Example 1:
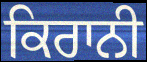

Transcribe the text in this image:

ਕਿਰਾਨੀ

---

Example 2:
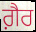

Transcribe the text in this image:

ਗ਼ੈਰ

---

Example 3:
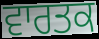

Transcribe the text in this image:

ਵਾਰਤਕ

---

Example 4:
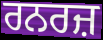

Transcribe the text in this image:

ਰਨਰਜ਼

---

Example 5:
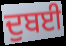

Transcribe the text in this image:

ਦੁਬਈ